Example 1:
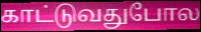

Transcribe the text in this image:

காட்டுவதுபோல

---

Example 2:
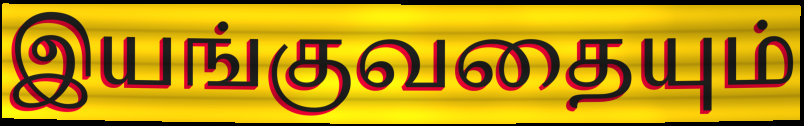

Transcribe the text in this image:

இயங்குவதையும்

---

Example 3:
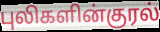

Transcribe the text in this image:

புலிகளின்குரல்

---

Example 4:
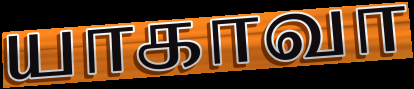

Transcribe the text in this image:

யாகாவா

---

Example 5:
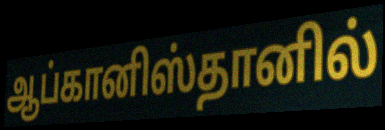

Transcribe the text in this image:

ஆப்கானிஸ்தானில்